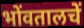
भोंवतालचें